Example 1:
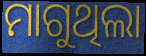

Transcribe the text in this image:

ମାଗୁଥିଲା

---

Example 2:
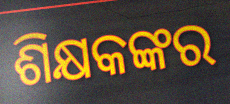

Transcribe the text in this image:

ଶିକ୍ଷକଙ୍କର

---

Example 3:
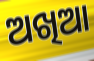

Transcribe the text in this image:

ଅଖିଆ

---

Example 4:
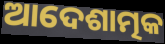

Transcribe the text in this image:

ଆଦେଶାତ୍ମକ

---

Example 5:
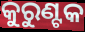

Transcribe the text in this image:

କୁରୁଣ୍ଟକ